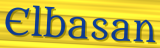
Elbasan